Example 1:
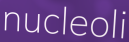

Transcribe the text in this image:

nucleoli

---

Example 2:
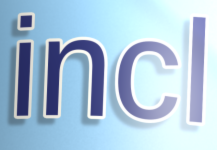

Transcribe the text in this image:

incl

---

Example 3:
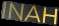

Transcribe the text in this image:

INAH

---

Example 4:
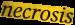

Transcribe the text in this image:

necrosis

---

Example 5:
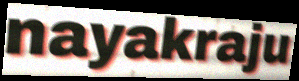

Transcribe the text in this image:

nayakraju